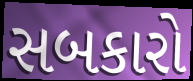
સબકારો